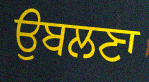
ਉਬਲਣਾ